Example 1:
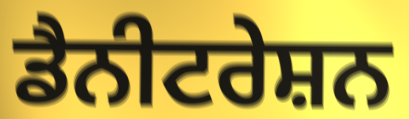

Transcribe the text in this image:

ਡੈਨੀਟਰੇਸ਼ਨ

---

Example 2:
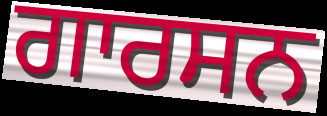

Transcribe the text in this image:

ਗਾਰਸਨ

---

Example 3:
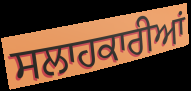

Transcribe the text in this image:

ਸਲਾਹਕਾਰੀਆਂ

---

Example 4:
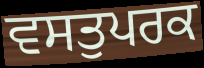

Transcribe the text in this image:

ਵਸਤੁਪਰਕ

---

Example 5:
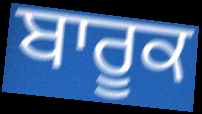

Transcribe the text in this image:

ਬਾਰੂਕ